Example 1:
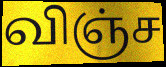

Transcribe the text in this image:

விஞ்ச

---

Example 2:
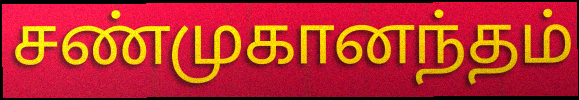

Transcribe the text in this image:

சண்முகானந்தம்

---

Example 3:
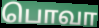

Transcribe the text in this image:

பொவா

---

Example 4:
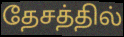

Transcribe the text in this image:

தேசத்தில்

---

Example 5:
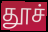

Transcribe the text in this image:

தூச்